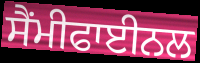
ਸੈਂਮੀਫਾਈਨਲ